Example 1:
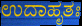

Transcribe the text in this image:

ಉದಾಹೃತಃ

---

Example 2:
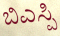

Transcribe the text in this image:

ಬಿಎಸ್ಪಿ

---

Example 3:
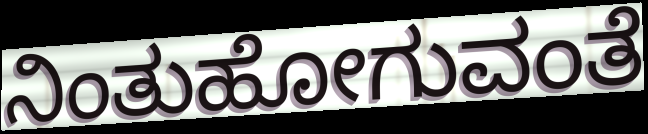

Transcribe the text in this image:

ನಿಂತುಹೋಗುವಂತೆ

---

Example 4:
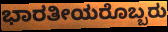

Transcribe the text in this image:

ಭಾರತೀಯರೊಬ್ಬರು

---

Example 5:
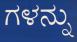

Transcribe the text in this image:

ಗಳನ್ನು